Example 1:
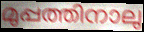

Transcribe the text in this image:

മുപ്പത്തിനാലു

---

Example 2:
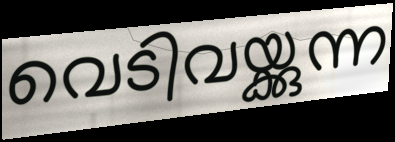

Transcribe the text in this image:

വെടിവയ്ക്കുന്ന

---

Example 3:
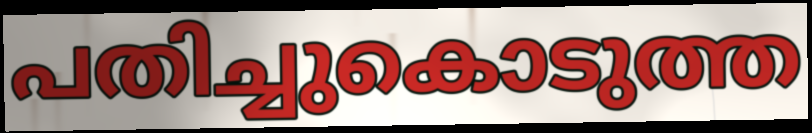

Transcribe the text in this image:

പതിച്ചുകൊടുത്ത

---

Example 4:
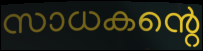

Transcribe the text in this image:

സാധകന്റെ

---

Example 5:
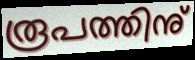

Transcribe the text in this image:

രൂപത്തിനു്